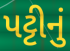
પટ્ટીનું